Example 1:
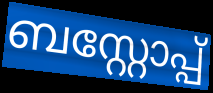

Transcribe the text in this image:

ബസ്റ്റോപ്പ്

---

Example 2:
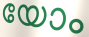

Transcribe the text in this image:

യോം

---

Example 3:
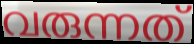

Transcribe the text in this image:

വരുന്നത്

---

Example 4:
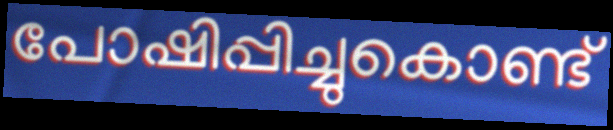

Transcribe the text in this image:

പോഷിപ്പിച്ചുകൊണ്ട്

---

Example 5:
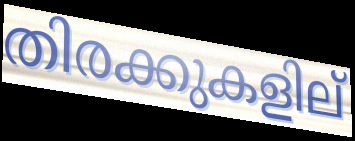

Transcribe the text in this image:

തിരക്കുകളില്